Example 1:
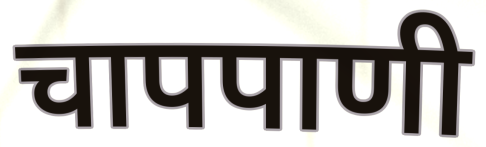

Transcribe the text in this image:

चापपाणी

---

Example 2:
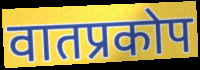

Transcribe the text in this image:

वातप्रकोप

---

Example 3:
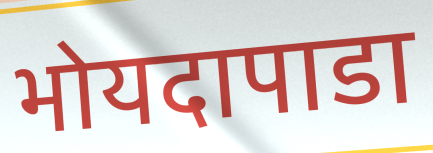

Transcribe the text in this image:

भोयदापाडा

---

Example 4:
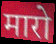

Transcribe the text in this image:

मारो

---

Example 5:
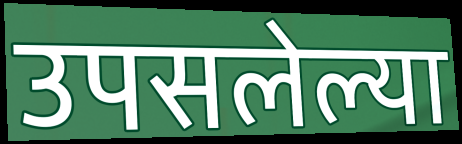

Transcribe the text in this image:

उपसलेल्या